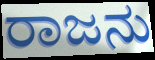
ರಾಜನು